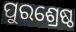
ପୁରଶ୍ରେଷ୍ଠ